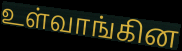
உள்வாங்கின